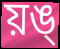
য়ঙ্